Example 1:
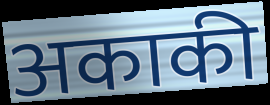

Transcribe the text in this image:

अकाकी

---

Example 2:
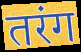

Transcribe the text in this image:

तरंग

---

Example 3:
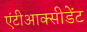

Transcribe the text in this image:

एंटीआक्सीडेंट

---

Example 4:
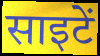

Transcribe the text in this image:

साइटें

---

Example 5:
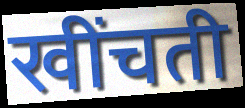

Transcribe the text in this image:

खींचती